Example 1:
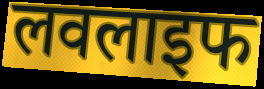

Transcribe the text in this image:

लवलाइफ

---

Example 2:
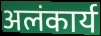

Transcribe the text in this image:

अलंकार्य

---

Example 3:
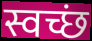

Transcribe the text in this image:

स्वच्छं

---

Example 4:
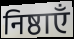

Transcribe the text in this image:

निष्ठाएँ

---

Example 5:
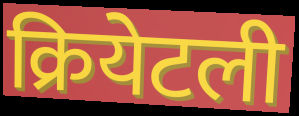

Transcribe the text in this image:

क्रियेटली